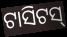
ଟାସିଟସ୍